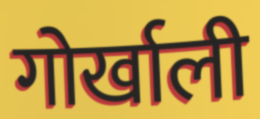
गोर्खाली